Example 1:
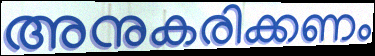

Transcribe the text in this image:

അനുകരിക്കണം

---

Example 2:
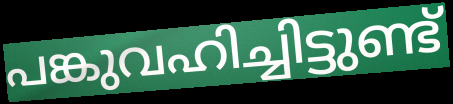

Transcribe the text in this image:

പങ്കുവഹിച്ചിട്ടുണ്ട്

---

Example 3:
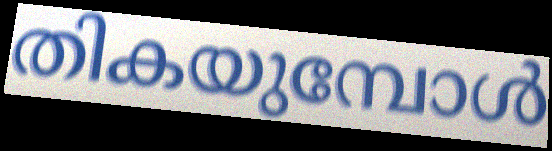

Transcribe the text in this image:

തികയുമ്പോൾ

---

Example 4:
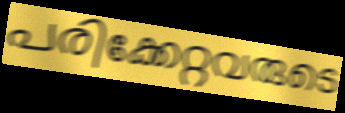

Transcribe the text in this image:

പരിക്കേറ്റവരുടെ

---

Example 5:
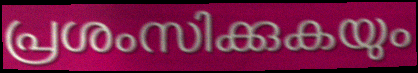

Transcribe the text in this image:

പ്രശംസിക്കുകയും